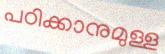
പഠിക്കാനുമുള്ള